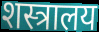
शस्त्रालय